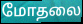
மோதலை